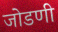
जोडणी